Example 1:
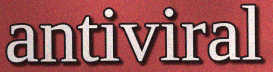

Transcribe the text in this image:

antiviral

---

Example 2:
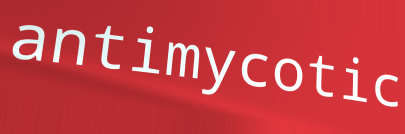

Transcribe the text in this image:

antimycotic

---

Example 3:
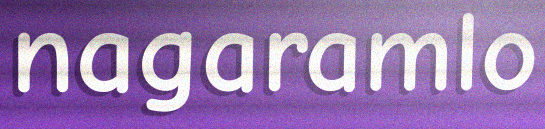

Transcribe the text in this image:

nagaramlo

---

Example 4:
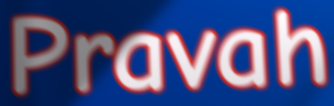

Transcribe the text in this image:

Pravah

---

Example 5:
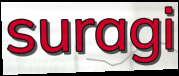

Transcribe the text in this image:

suragi